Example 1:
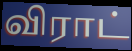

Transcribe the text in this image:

விராட்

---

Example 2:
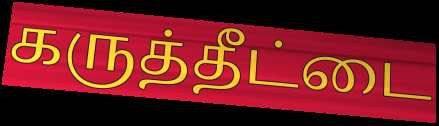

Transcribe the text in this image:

கருத்தீட்டை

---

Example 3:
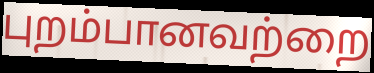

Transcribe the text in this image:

புறம்பானவற்றை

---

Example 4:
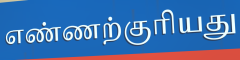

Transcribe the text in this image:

எண்ணற்குரியது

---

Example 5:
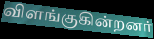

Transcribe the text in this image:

விளங்குகின்றனர்